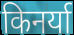
किनर्या